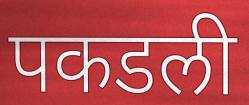
पकडली